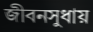
জীবনসুধায়